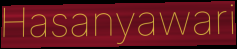
Hasanyawari